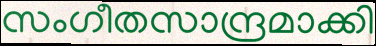
സംഗീതസാന്ദ്രമാക്കി